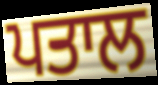
ਪਤਾਲ